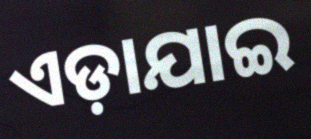
ଏଡ଼ାଯାଇ